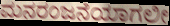
ಮನರಂಜನೆಯಾಗಲೀ